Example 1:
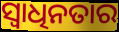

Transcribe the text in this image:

ସ୍ୱାଧିନତାର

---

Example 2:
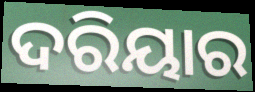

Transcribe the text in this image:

ଦରିୟାର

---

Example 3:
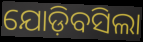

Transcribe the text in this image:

ଯୋଡ଼ିବସିଲା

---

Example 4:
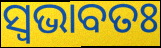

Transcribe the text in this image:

ସ୍ଵଭାବତଃ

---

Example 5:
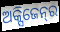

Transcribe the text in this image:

ଅକ୍ସିଜେନ୍‌ର